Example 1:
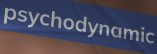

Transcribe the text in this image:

psychodynamic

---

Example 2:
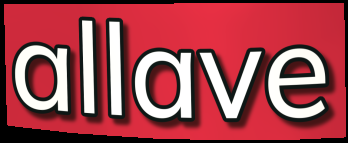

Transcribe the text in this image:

allave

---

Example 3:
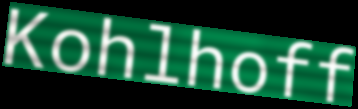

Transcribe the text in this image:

Kohlhoff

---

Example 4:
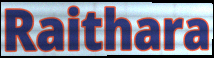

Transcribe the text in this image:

Raithara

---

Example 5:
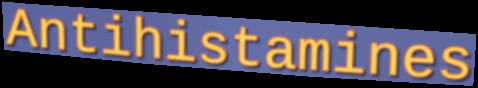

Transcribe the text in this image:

Antihistamines